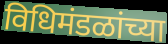
विधिमंडळांच्या